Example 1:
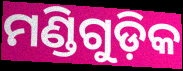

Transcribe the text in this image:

ମଣ୍ଡିଗୁଡ଼ିକ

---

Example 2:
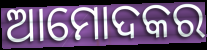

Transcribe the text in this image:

ଆମୋଦକର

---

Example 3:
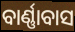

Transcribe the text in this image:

ବାର୍ଣ୍ଣାବାସ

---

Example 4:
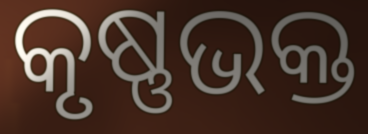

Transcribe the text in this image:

କୃଷ୍ଣଭକ୍ତ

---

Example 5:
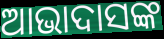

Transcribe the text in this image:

ଆଭାଦାସଙ୍କ